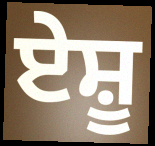
ਏਸ਼ੂ